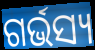
ଗର୍ଭସ୍ୟ